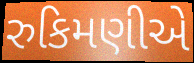
રુકિમણીએ